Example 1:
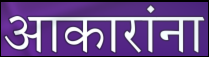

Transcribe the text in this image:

आकारांना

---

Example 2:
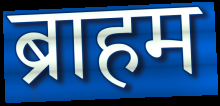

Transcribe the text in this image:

ब्राहम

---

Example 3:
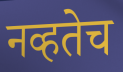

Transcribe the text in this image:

नव्हतेच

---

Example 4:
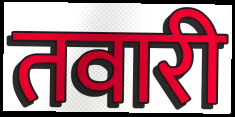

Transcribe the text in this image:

तवारी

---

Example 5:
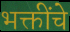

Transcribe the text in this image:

भक्तींचे